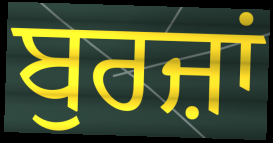
ਬੁਰਜ਼ਾਂ